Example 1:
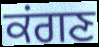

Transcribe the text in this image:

ਕਂਗਣ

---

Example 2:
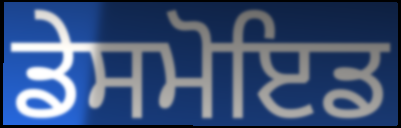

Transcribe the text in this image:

ਡੇਸਮੋਇਡ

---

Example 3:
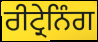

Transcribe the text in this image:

ਰੀਟ੍ਰੇਨਿੰਗ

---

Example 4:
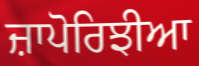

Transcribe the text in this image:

ਜ਼ਾਪੋਰਿਝੀਆ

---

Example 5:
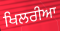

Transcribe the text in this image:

ਖਿਲਰੀਆ